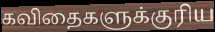
கவிதைகளுக்குரிய